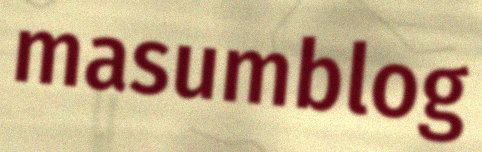
masumblog